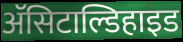
ॲसिटाल्डिहाइड